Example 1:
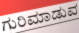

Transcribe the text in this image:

ಗುರಿಮಾಡುವ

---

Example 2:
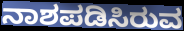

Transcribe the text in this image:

ನಾಶಪಡಿಸಿರುವ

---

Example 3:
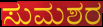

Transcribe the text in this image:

ಸುಮಶರ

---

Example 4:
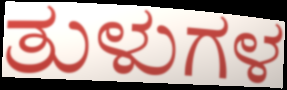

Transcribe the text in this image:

ತುಳುಗಳ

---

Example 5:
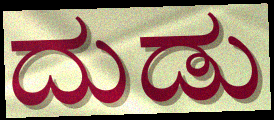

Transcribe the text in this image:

ದುಡು